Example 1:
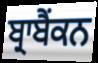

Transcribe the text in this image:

ਬ੍ਰਾਬੈਂਕਨ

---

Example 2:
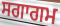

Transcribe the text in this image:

ਸਗਾਗਮ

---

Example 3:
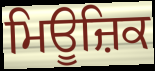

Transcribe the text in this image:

ਮਿਊਜ਼ਿਕ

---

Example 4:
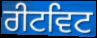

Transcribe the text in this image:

ਰੀਟਵਿਟ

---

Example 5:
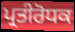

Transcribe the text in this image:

ਪ੍ਰਤੀਰੋਧਕ